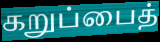
கறுப்பைத்